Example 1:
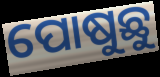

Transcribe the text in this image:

ପୋଷୁଛୁ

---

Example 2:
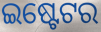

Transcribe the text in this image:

ଇଷ୍ଟେଟର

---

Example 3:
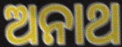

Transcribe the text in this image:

ଅନାଥ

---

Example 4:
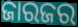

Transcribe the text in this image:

ଜାରଜର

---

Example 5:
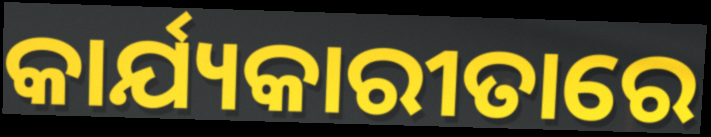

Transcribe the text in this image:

କାର୍ଯ୍ୟକାରୀତାରେ